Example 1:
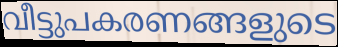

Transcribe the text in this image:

വീട്ടുപകരണങ്ങളുടെ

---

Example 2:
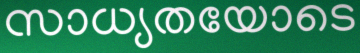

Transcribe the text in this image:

സാധ്യതയോടെ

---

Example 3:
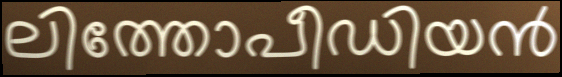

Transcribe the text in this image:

ലിത്തോപീഡിയൻ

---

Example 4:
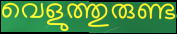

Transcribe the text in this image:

വെളുത്തുരുണ്ട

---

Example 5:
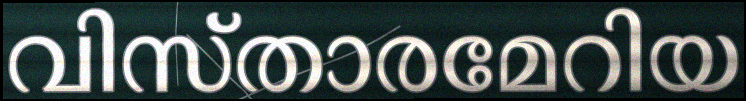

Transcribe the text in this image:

വിസ്താരമേറിയ